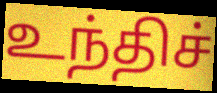
உந்திச்